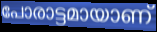
പോരാട്ടമായാണ്